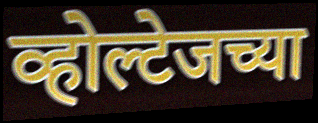
व्होल्टेजच्या